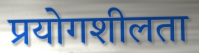
प्रयोगशीलता